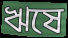
ঋষে